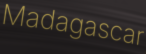
Madagascar